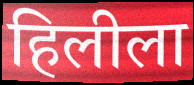
हिलीला